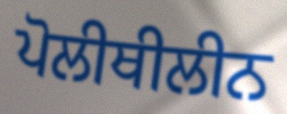
ਪੋਲੀਥੀਲੀਨ